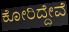
ಕೋರಿದ್ದೇವೆ